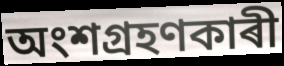
অংশগ্ৰহণকাৰী